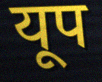
यूप